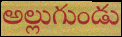
అల్లుగుండు